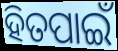
ହିତପାଇଁ